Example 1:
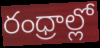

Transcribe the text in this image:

రంధ్రాల్లో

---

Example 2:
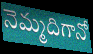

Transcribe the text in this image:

నెమ్మదిగానో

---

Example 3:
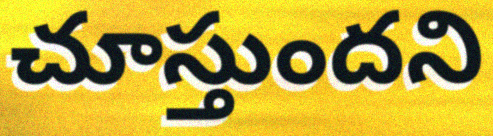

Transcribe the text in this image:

చూస్తుందని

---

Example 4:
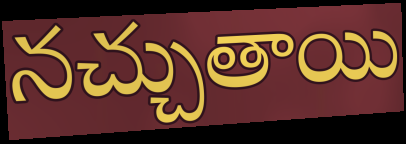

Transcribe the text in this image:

నచ్చుతాయి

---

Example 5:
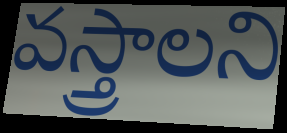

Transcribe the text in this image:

వస్త్రాలని